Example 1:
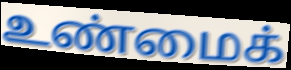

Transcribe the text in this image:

உண்மைக்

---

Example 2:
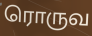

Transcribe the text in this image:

ரொருவ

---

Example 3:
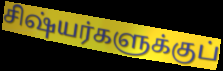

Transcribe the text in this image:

சிஷ்யர்களுக்குப்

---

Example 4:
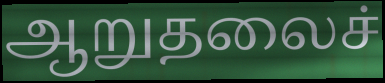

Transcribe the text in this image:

ஆறுதலைச்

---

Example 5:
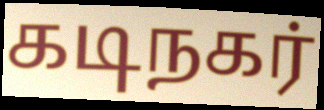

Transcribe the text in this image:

கடிநகர்